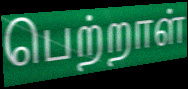
பெற்றாள்